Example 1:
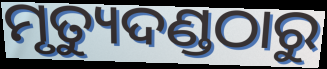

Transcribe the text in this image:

ମୃତ୍ୟୁଦଣ୍ଡଠାରୁ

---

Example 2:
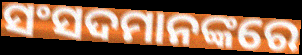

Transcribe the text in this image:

ସଂସଦମାନଙ୍କରେ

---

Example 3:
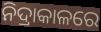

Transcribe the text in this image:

ନିଦ୍ରାକାଳରେ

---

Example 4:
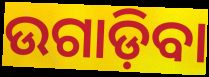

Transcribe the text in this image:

ଉଗାଡ଼ିବା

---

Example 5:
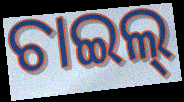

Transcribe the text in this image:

ଚାଇଲ୍